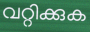
വറ്റിക്കുക